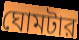
ঘোমটার